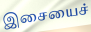
இசையைச்